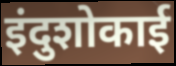
इंदुशोकाई